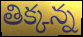
తిక్కన్న